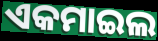
ଏକମାଇଲ